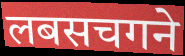
लबसचगने